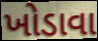
ખોડાવા